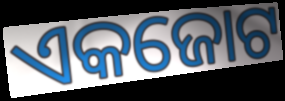
ଏକଜୋଟ